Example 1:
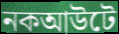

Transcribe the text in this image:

নকআউটে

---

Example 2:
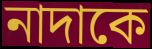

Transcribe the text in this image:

নাদাকে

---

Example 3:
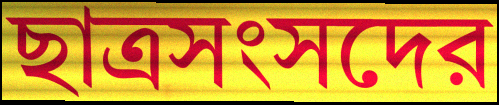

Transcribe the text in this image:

ছাত্রসংসদের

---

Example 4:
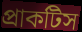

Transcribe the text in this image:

প্রাকটিস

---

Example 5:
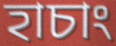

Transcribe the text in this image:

হাচাং